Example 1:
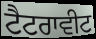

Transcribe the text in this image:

ਟੈਟਰਾਵੀਟ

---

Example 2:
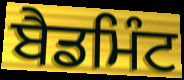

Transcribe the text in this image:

ਬੈਡਮਿੰਟ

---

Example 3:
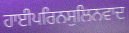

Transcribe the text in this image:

ਹਾਈਪਰਿਨਸੁਲਿਨਵਾਦ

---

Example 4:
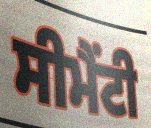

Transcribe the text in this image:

ਸੀਮੈਂਟੀ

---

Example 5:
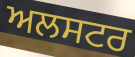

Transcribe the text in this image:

ਅਲਸਟਰ